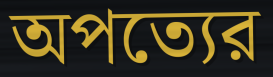
অপত্যের